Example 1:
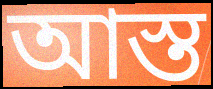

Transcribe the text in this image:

আস্ত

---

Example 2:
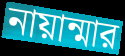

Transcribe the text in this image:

নায়ান্মার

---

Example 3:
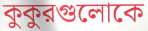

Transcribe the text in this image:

কুকুরগুলোকে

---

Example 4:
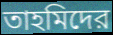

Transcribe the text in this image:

তাহমিদের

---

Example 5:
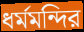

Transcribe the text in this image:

ধর্মমন্দির